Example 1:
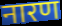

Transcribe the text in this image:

नारण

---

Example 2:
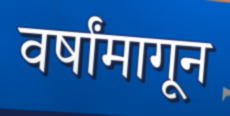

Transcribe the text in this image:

वर्षांमागून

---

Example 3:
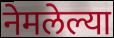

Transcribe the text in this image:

नेमलेल्या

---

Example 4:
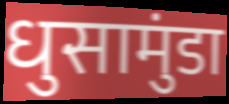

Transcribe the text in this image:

धुसामुंडा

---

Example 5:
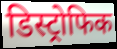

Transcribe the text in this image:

डिस्ट्रोफिक